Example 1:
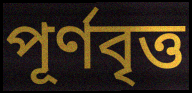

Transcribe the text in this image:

পূর্ণবৃত্ত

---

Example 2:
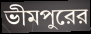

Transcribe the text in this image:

ভীমপুরের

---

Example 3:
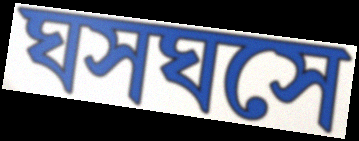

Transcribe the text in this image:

ঘসঘসে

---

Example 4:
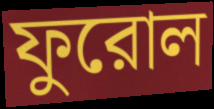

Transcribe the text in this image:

ফুরোল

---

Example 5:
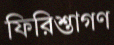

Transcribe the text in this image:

ফিরিশ্তাগণ